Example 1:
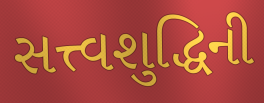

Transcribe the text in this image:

સત્ત્વશુદ્ધિની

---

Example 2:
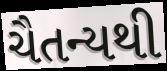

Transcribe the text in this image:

ચૈતન્યથી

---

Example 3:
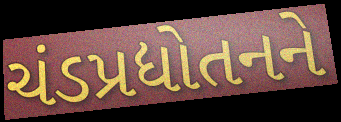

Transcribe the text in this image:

ચંડપ્રદ્યોતનને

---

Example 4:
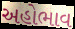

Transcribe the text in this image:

અહોભાવ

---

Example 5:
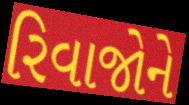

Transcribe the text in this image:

રિવાજોને